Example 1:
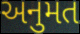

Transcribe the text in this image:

અનુમત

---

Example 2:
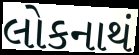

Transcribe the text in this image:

લોકનાથં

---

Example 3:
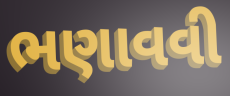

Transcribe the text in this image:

ભણાવવી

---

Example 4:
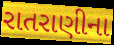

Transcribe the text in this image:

રાતરાણીના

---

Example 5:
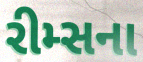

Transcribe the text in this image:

રીમ્સના